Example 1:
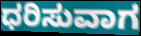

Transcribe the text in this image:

ಧರಿಸುವಾಗ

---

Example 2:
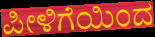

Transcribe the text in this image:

ಪೀಳಿಗೆಯಿಂದ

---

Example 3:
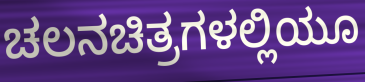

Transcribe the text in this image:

ಚಲನಚಿತ್ರಗಳಲ್ಲಿಯೂ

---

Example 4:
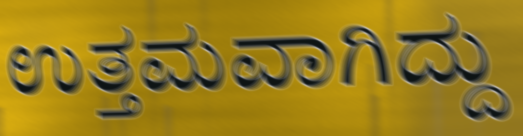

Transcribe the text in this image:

ಉತ್ತಮವಾಗಿದ್ದು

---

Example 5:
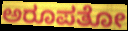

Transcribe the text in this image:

ಅರೂಪತೋ